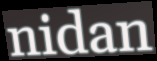
nidan